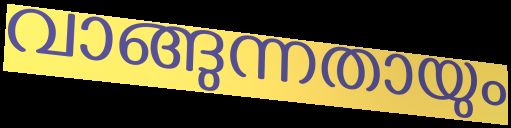
വാങ്ങുന്നതായും